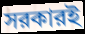
সরকারই